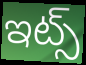
ఇట్స్